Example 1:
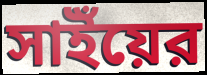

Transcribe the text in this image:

সাইঁয়ের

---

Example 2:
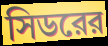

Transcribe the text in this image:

সিডরের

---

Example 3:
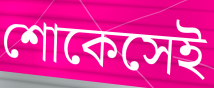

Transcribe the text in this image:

শোকেসেই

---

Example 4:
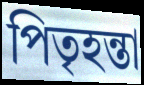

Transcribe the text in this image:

পিতৃহন্তা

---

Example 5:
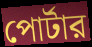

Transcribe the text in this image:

পোর্টার